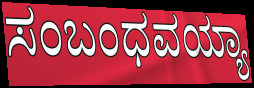
ಸಂಬಂಧವಯ್ಯಾ